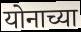
योनाच्या